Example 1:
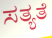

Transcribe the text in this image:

ಸತ್ಯತೆ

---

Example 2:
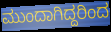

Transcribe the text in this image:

ಮುಂದಾಗಿದ್ದರಿಂದ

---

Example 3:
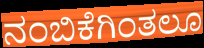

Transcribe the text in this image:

ನಂಬಿಕೆಗಿಂತಲೂ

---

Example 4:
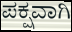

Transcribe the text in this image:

ಪಕ್ಷವಾಗಿ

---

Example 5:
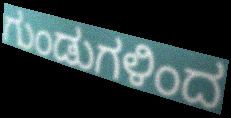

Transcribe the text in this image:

ಗುಂಡುಗಳಿಂದ